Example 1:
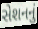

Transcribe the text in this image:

સેશનનું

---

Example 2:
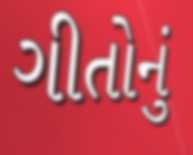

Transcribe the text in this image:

ગીતોનું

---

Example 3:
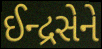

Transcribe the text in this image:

ઈન્દ્રસેને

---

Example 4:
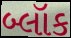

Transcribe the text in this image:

બ્લૉક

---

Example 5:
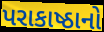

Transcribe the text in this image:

પરાકાષ્ઠાનો